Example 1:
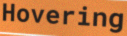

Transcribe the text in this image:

Hovering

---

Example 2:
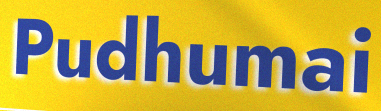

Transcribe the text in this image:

Pudhumai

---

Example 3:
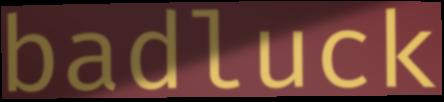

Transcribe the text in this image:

badluck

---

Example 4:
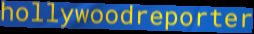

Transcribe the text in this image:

hollywoodreporter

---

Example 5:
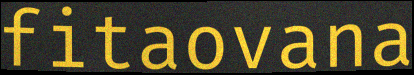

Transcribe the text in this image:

fitaovana